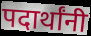
पदार्थांनी